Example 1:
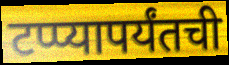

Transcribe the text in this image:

टप्प्यापर्यंतची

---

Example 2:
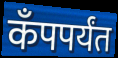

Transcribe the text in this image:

कँपपर्यंत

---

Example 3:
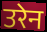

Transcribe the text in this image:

उरेन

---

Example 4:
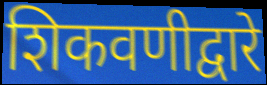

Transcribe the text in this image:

शिकवणीद्वारे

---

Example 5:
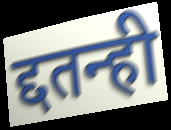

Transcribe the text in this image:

द्दतन्ही